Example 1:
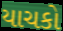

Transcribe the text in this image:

યાચકો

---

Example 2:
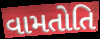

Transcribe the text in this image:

વામતોતિ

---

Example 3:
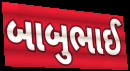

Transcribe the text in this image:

બાબુભાઈ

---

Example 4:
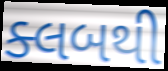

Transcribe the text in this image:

ક્લબથી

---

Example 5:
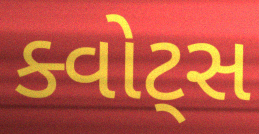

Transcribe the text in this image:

ક્વોટ્સ